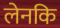
लेनकि